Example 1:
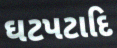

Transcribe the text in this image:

ઘટપટાદિ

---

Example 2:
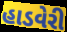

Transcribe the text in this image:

હાડવેરી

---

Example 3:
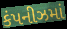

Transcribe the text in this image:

કંપનીઝમાં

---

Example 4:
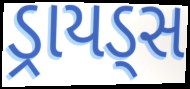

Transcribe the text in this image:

ડ્રાયડ્સ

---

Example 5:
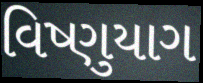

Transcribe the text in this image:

વિષ્ણુયાગ